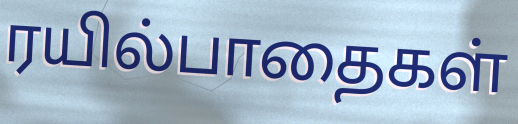
ரயில்பாதைகள்